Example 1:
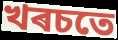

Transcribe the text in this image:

খৰচতে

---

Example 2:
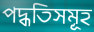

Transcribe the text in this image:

পদ্ধতিসমূহ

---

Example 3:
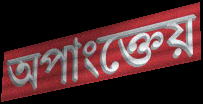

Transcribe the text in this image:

অপাংক্তেয়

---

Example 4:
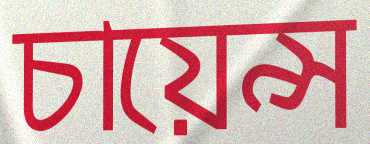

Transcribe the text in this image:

চায়েন্স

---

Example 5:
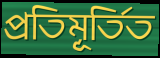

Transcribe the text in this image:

প্ৰতিমূৰ্তিত